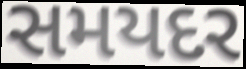
સમયદર